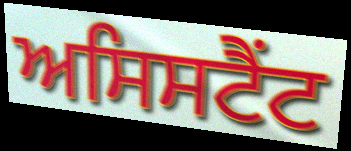
ਅਸਿਸਟੈਂਟ